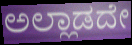
ಅಲ್ಲಾಡದೇ